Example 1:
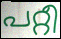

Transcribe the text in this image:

പറ്റീ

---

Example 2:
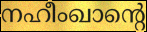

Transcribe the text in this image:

നഹീംഖാന്റെ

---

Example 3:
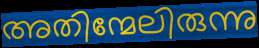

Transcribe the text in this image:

അതിന്മേലിരുന്നു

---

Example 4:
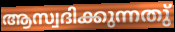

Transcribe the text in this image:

ആസ്വദിക്കുന്നതു്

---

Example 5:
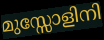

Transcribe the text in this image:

മുസ്സോളിനി